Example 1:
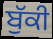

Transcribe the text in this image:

ਬੁੱਕੀ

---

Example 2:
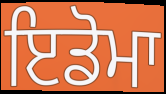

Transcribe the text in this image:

ਇਡੋਮਾ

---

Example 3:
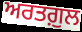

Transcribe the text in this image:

ਅਰਤਗ਼ੁਲ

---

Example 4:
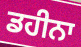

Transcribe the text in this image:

ਡਹੀਨਾ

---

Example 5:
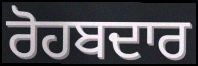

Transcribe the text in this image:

ਰੋਹਬਦਾਰ